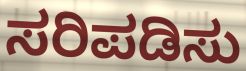
ಸರಿಪಡಿಸು